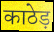
काठेड़